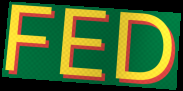
FED